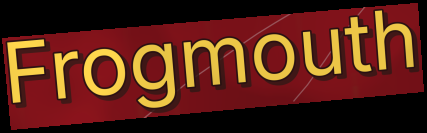
Frogmouth